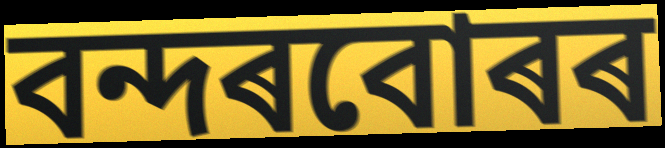
বন্দৰবোৰৰ